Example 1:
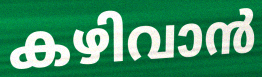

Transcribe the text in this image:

കഴിവാൻ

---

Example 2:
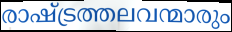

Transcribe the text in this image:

രാഷ്ട്രത്തലവന്മാരും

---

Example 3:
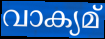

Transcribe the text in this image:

വാക്യമ്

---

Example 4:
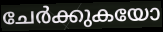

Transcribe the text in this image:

ചേർക്കുകയോ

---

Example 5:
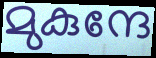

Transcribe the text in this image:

മുകുന്ദേ